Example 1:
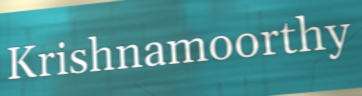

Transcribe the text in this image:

Krishnamoorthy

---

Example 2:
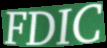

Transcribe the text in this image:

FDIC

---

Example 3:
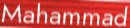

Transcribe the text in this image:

Mahammad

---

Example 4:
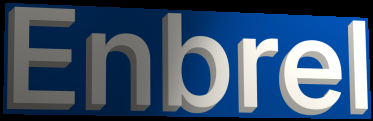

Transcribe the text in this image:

Enbrel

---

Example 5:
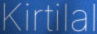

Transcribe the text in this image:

Kirtilal